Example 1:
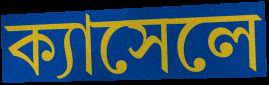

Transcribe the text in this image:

ক্যাসেলে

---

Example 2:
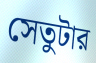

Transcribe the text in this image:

সেতুটার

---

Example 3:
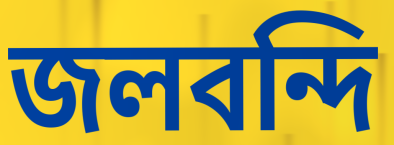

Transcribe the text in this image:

জলবন্দি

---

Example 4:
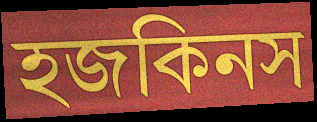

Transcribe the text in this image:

হজকিনস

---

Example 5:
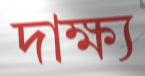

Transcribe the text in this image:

দাক্ষ্য